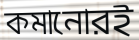
কমানোরই